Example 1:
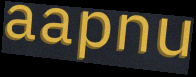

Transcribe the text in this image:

aapnu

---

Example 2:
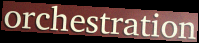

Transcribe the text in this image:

orchestration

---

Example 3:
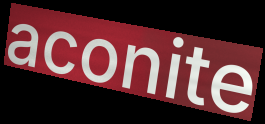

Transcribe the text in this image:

aconite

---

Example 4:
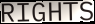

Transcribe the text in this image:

RIGHTS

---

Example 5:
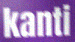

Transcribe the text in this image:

kanti